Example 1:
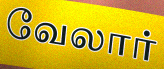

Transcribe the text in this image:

வேலார்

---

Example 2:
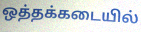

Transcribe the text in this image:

ஒத்தக்கடையில்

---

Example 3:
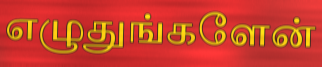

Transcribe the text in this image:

எழுதுங்களேன்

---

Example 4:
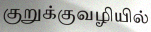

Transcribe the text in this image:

குறுக்குவழியில்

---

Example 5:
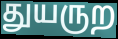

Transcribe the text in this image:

துயருற